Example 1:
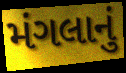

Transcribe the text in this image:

મંગલાનું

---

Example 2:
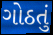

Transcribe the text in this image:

ગોઠતું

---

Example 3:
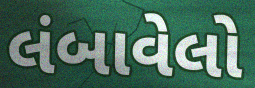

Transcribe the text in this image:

લંબાવેલો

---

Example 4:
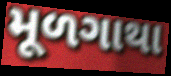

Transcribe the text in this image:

મૂળગાથા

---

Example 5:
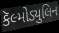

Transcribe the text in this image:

કૅલ્મોડ્યુલિન